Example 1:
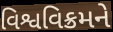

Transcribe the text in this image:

વિશ્વવિક્રમને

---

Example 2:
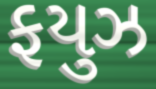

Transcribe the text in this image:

ફયુઝ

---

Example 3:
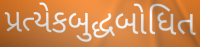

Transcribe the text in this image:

પ્રત્યેકબુદ્ધબોધિત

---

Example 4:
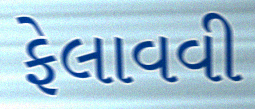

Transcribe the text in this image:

ફેલાવવી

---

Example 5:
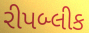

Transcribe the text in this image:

રીપબ્લીક